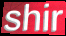
shir